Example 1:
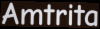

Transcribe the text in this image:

Amtrita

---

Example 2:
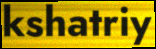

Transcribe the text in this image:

kshatriy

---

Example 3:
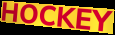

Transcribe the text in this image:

HOCKEY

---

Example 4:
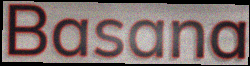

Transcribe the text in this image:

Basana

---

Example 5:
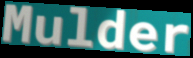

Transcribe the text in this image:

Mulder